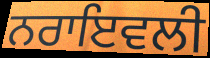
ਨਰਾਇਵਲੀ